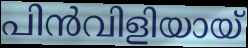
പിൻവിളിയായ്